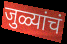
जुळ्यांचं